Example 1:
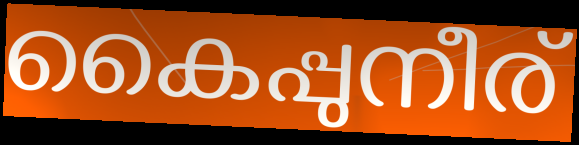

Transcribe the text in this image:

കൈപ്പുനീര്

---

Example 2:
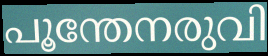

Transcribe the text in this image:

പൂന്തേനരുവി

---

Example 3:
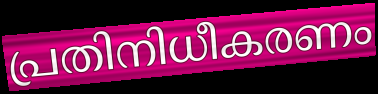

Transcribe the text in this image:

പ്രതിനിധീകരണം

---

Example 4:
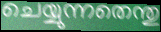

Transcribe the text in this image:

ചെയ്യുന്നതെന്തു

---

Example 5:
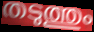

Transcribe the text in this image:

തടുത്തും